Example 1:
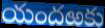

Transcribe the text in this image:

యందఱకు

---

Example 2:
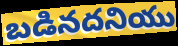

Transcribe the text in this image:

బడినదనియు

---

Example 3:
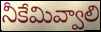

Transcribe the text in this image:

నీకేమివ్వాలి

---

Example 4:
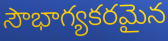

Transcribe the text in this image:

సౌభాగ్యకరమైన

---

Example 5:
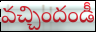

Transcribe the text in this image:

వచ్చిందండీ